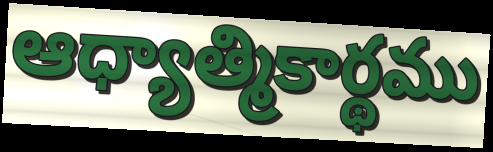
ఆధ్యాత్మికార్థము